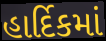
હાર્દિકમાં